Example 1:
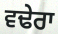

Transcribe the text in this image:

ਵਢੇਰਾ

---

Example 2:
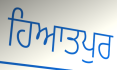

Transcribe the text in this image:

ਹਿਆਤਪੁਰ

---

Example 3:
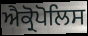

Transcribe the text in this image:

ਐਕ੍ਰੋਪੋਲਿਸ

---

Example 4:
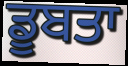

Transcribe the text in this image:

ਡੂਬਤਾ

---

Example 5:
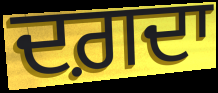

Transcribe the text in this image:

ਦਗ਼ਦਾ